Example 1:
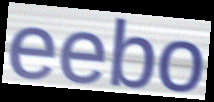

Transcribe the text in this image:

eebo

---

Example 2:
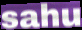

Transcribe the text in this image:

sahu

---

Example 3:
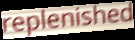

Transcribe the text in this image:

replenished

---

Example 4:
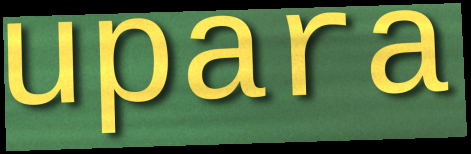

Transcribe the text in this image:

upara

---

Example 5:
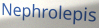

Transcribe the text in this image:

Nephrolepis